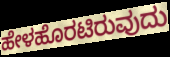
ಹೇಳಹೊರಟಿರುವುದು